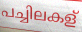
പച്ചിലകള്